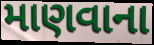
માણવાના